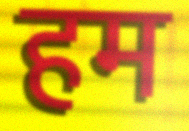
हम